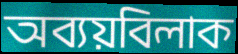
অব্যয়বিলাক